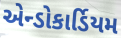
એન્ડોકાર્ડિયમ